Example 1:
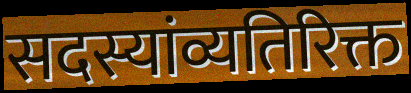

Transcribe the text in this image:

सदस्यांव्यतिरिक्त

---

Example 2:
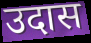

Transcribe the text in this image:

उदास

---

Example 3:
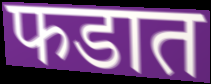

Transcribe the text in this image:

फडात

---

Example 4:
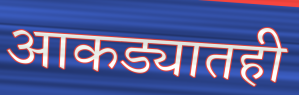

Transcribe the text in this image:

आकड्यातही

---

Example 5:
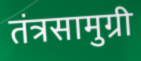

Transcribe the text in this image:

तंत्रसामुग्री